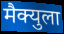
मैक्युला